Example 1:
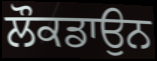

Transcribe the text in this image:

ਲੌਕਡਾਉਨ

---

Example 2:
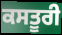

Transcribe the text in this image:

ਕਸਤੂਰੀ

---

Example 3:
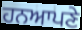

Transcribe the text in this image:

ਹਨਆਪਣੇ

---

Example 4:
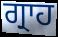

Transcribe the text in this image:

ਗ੍ਰਾਹ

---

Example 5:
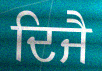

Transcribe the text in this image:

ਦਿਜੈ